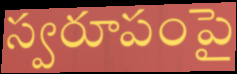
స్వరూపంపై